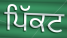
ਪਿੱਕਟ